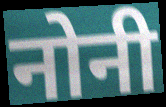
नोनी